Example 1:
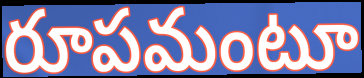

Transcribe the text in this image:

రూపమంటూ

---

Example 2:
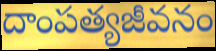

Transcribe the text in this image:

దాంపత్యజీవనం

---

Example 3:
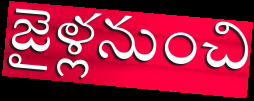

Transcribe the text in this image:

జైళ్లనుంచి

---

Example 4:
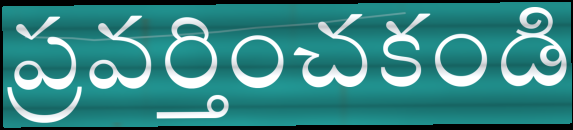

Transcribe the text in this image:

ప్రవర్తించకండి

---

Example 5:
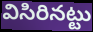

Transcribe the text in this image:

విసిరినట్టు